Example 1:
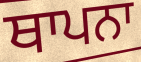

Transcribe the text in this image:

ਥਾਪਨਾ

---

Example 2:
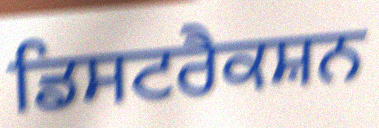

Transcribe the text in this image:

ਡਿਸਟਰੈਕਸ਼ਨ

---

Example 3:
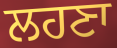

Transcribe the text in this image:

ਲਹਣਾ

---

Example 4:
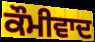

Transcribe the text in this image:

ਕੌਮੀਵਾਦ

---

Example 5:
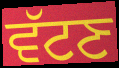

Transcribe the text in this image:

ਵੱਟਣ